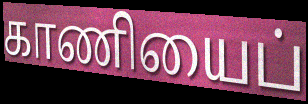
காணியைப்